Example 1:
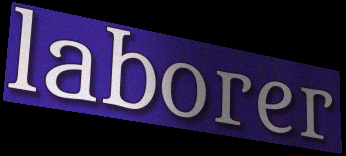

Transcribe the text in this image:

laborer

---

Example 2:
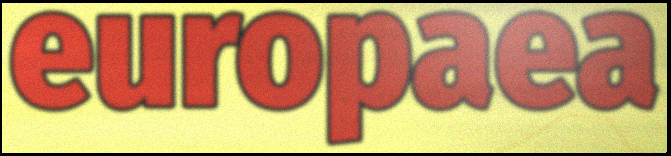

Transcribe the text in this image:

europaea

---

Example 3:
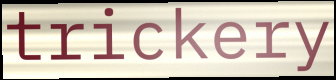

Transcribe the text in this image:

trickery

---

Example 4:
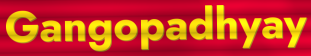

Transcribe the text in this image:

Gangopadhyay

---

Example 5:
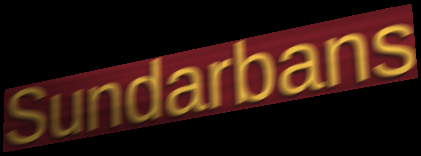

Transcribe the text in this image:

Sundarbans